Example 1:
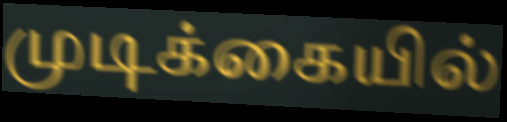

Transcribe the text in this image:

முடிக்கையில்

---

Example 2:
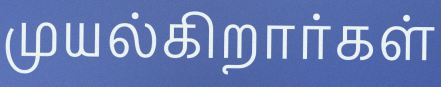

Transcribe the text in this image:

முயல்கிறார்கள்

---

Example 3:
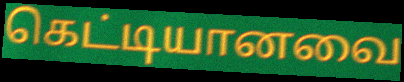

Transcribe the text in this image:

கெட்டியானவை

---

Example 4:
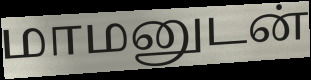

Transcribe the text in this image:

மாமனுடன்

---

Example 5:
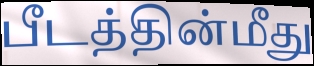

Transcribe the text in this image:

பீடத்தின்மீது